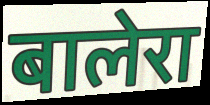
बालेरा